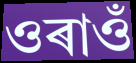
ওৰাওঁ